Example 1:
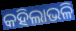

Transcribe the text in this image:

କହିଲାଭଳି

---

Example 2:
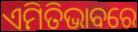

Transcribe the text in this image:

ଏମିତିଭାବରେ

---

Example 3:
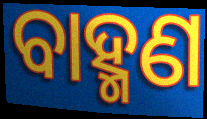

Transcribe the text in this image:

ବାହ୍ମଣ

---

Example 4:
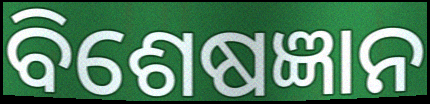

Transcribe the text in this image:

ବିଶେଷଜ୍ଞାନ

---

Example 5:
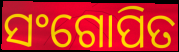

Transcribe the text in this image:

ସଂଗୋପିତ